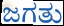
ಜಗತು